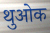
थुओक